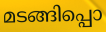
മടങ്ങിപ്പൊ